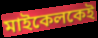
মাইকেলকেই